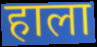
हाला